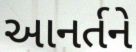
આનર્તને